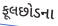
ફૂલછોડના